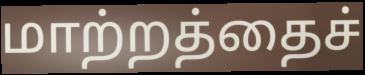
மாற்றத்தைச்